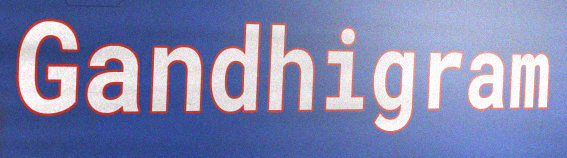
Gandhigram